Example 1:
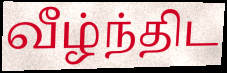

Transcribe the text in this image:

வீழ்ந்திட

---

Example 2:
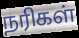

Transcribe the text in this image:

நரிகள்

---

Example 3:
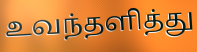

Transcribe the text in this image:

உவந்தளித்து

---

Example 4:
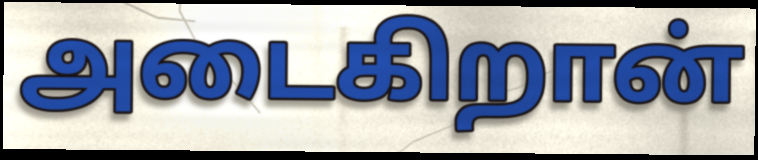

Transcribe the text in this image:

அடைகிறான்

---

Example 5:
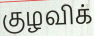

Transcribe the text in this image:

குழவிக்